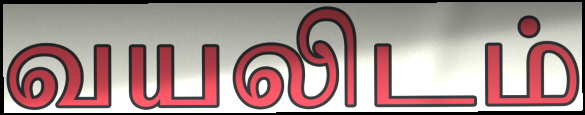
வயலிடம்